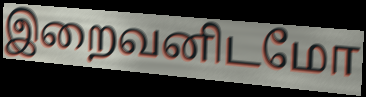
இறைவனிடமோ